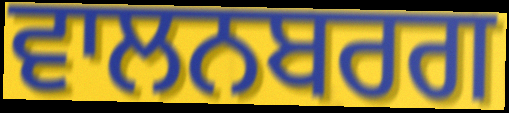
ਵਾਲਨਬਰਗ